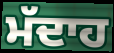
ਮੱਦਾਹ